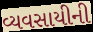
વ્યવસાયીની